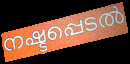
നഷ്ടപ്പെടൽ